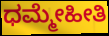
ಧಮ್ಮೇಹೀತಿ